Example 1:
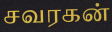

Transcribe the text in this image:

சவரகன்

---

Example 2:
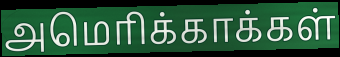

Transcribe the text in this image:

அமெரிக்காக்கள்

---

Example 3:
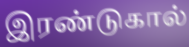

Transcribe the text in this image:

இரண்டுகால்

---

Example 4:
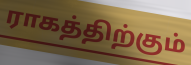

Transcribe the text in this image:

ராகத்திற்கும்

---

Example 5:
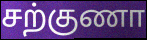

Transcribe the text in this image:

சற்குணா